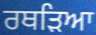
ਰਥੜਿਆ